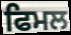
ਫਿਮਲ